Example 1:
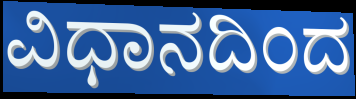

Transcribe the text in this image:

ವಿಧಾನದಿಂದ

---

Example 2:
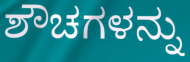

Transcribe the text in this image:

ಶೌಚಗಳನ್ನು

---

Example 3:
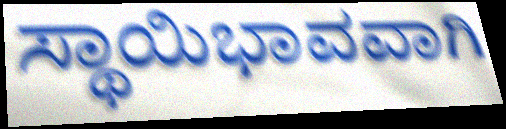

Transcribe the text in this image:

ಸ್ಥಾಯಿಭಾವವಾಗಿ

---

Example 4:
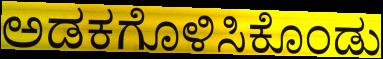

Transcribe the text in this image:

ಅಡಕಗೊಳಿಸಿಕೊಂಡು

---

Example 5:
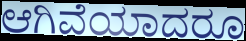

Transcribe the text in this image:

ಆಗಿವೆಯಾದರೂ